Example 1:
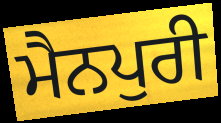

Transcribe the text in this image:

ਮੈਨਪੁਰੀ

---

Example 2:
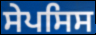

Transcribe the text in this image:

ਸੇਪਸਿਸ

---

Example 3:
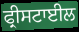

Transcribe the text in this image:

ਫ੍ਰੀਸਟਾਈਲ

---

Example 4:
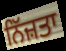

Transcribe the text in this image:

ਨਿੱਜ਼ਤਾ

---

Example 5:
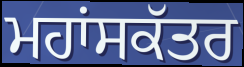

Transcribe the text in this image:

ਮਹਾਂਸਕੱਤਰ